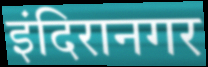
इंदिरानगर